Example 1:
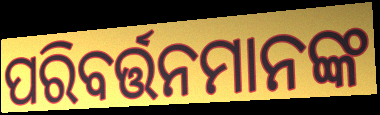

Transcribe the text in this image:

ପରିବର୍ତ୍ତନମାନଙ୍କ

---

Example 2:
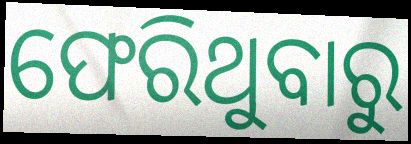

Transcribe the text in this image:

ଫେରିଥୁବାରୁ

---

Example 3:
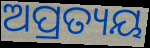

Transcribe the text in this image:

ଅପ୍ରତ୍ୟୟ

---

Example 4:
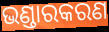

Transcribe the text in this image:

ଭଣ୍ଡାରକରଣ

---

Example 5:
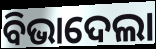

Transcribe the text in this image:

ବିଭାଦେଲା